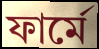
ফার্মে